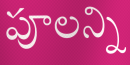
పూలన్ని